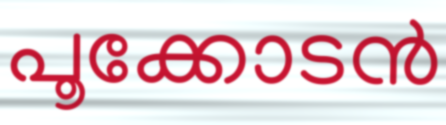
പൂക്കോടൻ